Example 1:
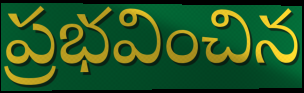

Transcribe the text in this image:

ప్రభవించిన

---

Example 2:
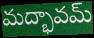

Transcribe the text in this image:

మద్భావమ్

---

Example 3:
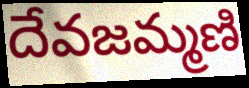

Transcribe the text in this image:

దేవజమ్మణి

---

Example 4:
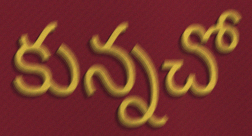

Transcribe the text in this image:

కున్నచో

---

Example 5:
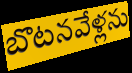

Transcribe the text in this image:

బొటనవేళ్లను